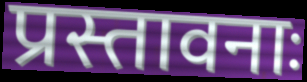
प्रस्तावनाः